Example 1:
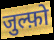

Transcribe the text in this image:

जुल्फ़ो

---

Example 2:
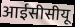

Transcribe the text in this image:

आईसीसीयू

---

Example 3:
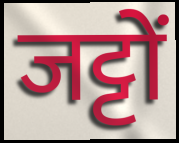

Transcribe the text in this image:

जट्टों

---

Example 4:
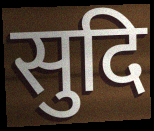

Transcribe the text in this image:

सुदि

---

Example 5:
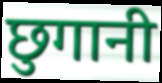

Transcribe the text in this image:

छुगानी